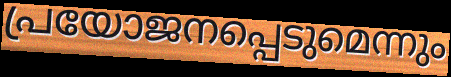
പ്രയോജനപ്പെടുമെന്നും